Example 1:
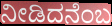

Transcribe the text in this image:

ನೀಡಿದನೆಂಬ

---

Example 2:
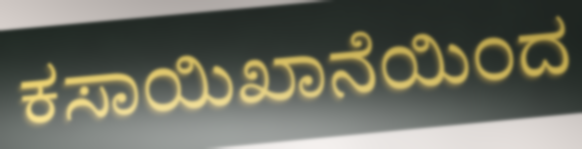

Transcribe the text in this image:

ಕಸಾಯಿಖಾನೆಯಿಂದ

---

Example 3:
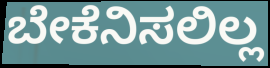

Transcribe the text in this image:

ಬೇಕೆನಿಸಲಿಲ್ಲ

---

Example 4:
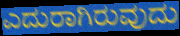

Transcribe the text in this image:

ಎದುರಾಗಿರುವುದು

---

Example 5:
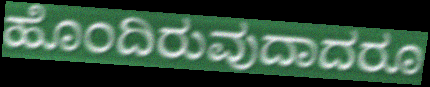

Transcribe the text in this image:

ಹೊಂದಿರುವುದಾದರೂ